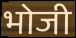
भोजी